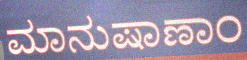
ಮಾನುಷಾಣಾಂ